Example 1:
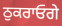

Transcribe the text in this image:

ਠੁਕਰਾਓਗੇ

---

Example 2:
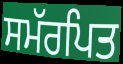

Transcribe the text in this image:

ਸਮੱਰਪਿਤ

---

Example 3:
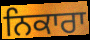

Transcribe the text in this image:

ਨਿਕਾਰਾ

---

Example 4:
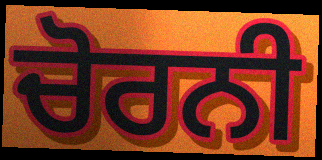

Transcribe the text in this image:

ਚੋਰਨੀ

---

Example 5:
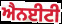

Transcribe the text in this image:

ਐਨਈਟੀ